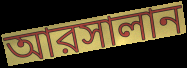
আরসালান